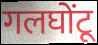
गलघोंटू